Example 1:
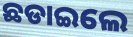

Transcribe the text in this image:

ଛଡାଇଲେ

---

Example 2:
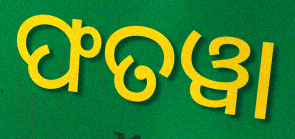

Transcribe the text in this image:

ଫତୱା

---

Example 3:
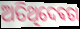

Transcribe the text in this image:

ଅତିଥିଦେବତା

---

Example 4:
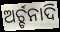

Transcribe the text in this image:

ଅର୍ଚ୍ଚନାଦି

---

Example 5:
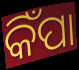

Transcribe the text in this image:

କିଁପା